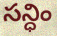
సన్ధిం